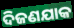
ଦିଜଣଯାକ